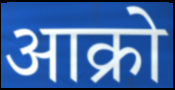
आक्रो